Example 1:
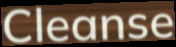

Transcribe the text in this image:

Cleanse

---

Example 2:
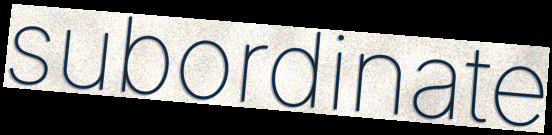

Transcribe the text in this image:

subordinate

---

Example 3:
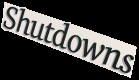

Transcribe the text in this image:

Shutdowns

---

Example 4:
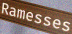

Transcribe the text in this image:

Ramesses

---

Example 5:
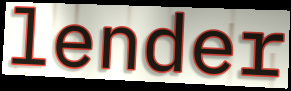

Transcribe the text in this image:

lender